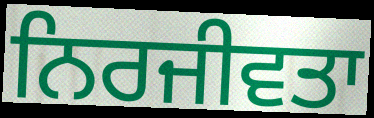
ਨਿਰਜੀਵਤਾ